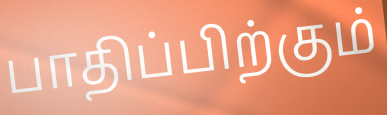
பாதிப்பிற்கும்